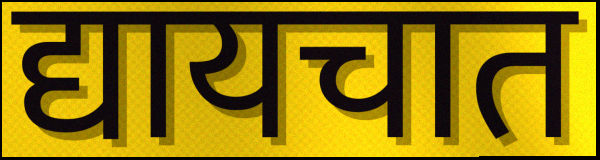
द्यायचात